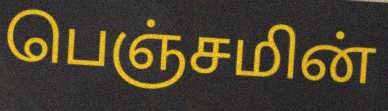
பெஞ்சமின்